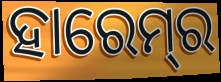
ହାରେମ୍‍ର